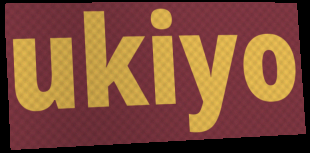
ukiyo